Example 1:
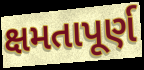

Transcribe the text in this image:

ક્ષમતાપૂર્ણ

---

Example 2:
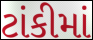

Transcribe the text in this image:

ટાંકીમાં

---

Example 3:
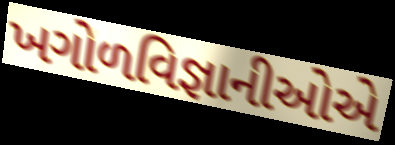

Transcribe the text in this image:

ખગોળવિજ્ઞાનીઓએ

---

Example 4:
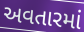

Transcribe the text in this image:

અવતારમાં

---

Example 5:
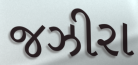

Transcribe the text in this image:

જઝીરા